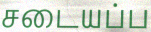
சடையப்ப